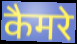
कैमरे